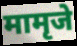
मामृजे